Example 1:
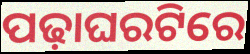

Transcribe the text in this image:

ପଢ଼ାଘରଟିରେ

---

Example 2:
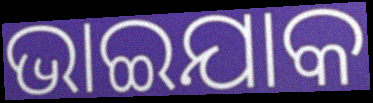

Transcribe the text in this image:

ଭାଇଯାକ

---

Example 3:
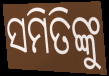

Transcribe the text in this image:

ସମିତିଙ୍କୁ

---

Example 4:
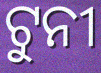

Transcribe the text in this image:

ଟୁନୀ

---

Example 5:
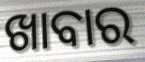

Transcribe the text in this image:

ଖାବାର